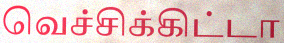
வெச்சிக்கிட்டா